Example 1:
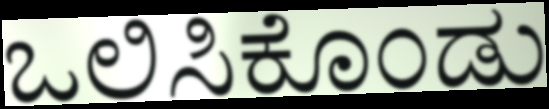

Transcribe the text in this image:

ಒಲಿಸಿಕೊಂಡು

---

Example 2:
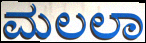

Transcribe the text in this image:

ಮಲಲಾ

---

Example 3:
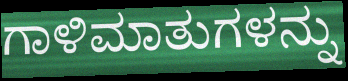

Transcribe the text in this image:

ಗಾಳಿಮಾತುಗಳನ್ನು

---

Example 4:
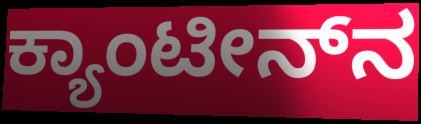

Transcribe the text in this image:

ಕ್ಯಾಂಟೀನ್‌ನ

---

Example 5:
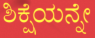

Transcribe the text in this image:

ಶಿಕ್ಷೆಯನ್ನೇ